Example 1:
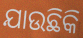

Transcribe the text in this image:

ଯାଉଛିକି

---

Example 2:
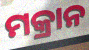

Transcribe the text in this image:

ମକ୍ରାନ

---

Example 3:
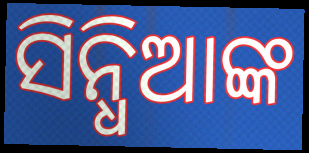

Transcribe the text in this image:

ସିନ୍ଧିଆଙ୍କ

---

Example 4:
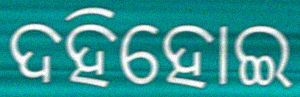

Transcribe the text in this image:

ଦହିହୋଇ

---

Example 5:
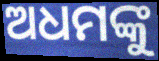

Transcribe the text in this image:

ଅଧମଙ୍କୁ